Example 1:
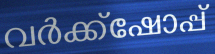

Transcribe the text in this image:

വർക്ക്ഷോപ്പ്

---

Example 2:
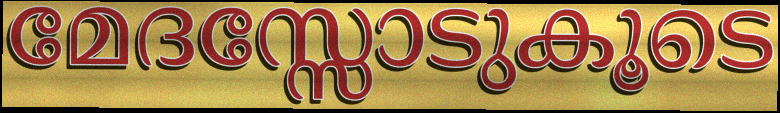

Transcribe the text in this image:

മേദസ്സോടുകൂടെ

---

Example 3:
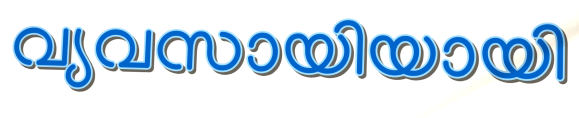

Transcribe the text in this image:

വ്യവസായിയായി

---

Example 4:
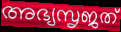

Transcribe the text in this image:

അഭ്യസൃജത്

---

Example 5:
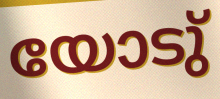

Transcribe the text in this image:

യോടു്